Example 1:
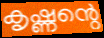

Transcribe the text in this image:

കൃഷ്ണന്റെ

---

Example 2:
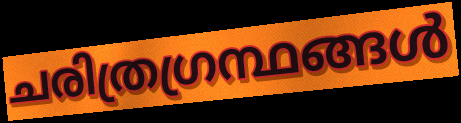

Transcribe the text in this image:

ചരിത്രഗ്രന്ഥങ്ങൾ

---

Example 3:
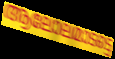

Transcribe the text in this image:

ആലോലമാടട്ടെ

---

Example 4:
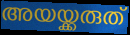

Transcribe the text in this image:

അയയ്ക്കരുത്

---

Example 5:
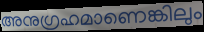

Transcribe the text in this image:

അനുഗ്രഹമാണെങ്കിലും